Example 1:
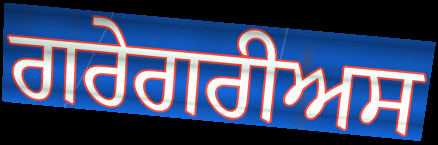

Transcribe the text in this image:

ਗਰੇਗਰੀਅਸ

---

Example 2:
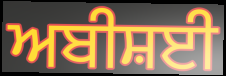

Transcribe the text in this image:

ਅਬੀਸ਼ਈ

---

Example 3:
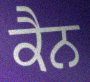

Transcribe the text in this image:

ਕੈਨ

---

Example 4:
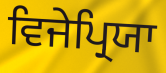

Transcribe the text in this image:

ਵਿਜੇਪ੍ਰਿਯਾ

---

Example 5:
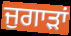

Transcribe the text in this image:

ਜੁਗਾੜਾਂ